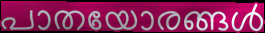
പാതയോരങ്ങൾ